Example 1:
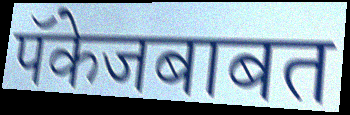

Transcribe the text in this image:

पॅकेजबाबत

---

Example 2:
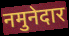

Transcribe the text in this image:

नमुनेदार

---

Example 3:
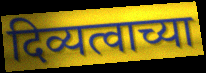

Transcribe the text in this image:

दिव्यत्वाच्या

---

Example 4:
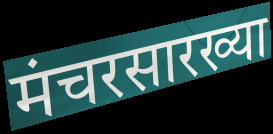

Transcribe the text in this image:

मंचरसारख्या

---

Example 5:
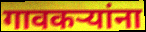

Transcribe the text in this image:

गावकऱ्यांना